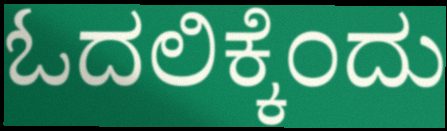
ಓದಲಿಕ್ಕೆಂದು